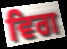
ਵਿਗ